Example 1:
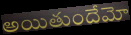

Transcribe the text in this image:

అయితుందేమో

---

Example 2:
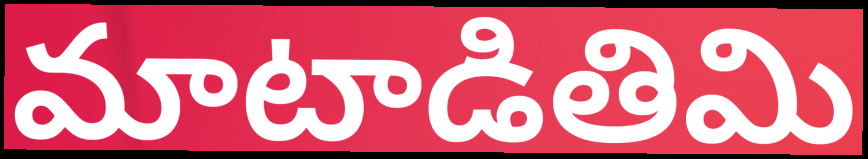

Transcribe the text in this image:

మాటాడితిమి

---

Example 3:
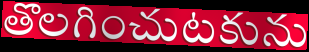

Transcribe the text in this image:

తొలగించుటకును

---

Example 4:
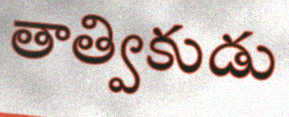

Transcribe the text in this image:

తాత్వికుడు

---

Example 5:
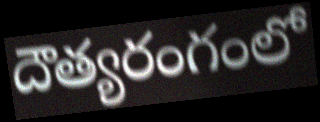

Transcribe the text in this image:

దౌత్యరంగంలో